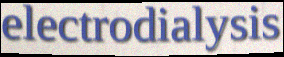
electrodialysis